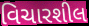
વિચારશીલ